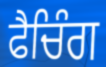
ਫੈਚਿੰਗ